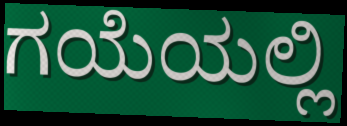
ಗಯೆಯಲ್ಲಿ